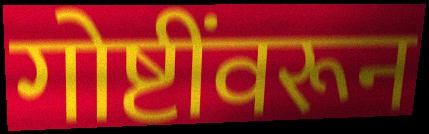
गोष्टींवरून